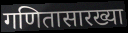
गणितासारख्या